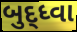
બુદ્ધ્વા